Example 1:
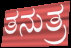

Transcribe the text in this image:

ತನುತ್ರ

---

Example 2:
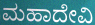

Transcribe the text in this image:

ಮಹಾದೇವಿ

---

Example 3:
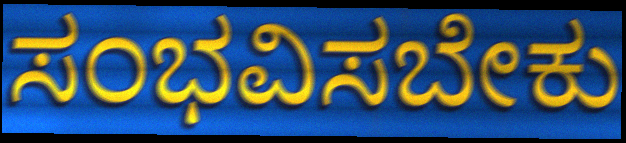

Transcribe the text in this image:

ಸಂಭವಿಸಬೇಕು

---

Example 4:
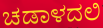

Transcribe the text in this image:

ಚಡಾಳದಲಿ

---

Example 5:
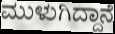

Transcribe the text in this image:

ಮುಳುಗಿದ್ದಾನೆ